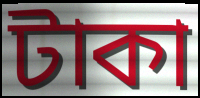
টাকা